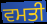
ਵਮਤੀ